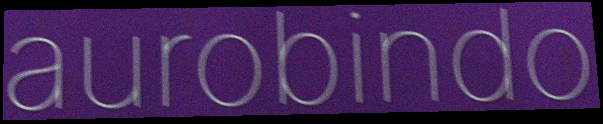
aurobindo